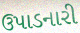
ઉપાડનારી